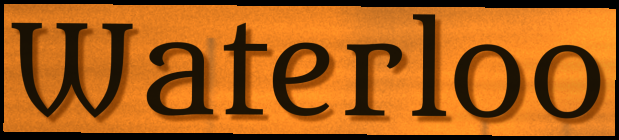
Waterloo